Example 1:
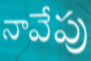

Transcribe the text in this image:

నావేపు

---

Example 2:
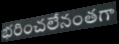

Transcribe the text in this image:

భరించలేనంతగా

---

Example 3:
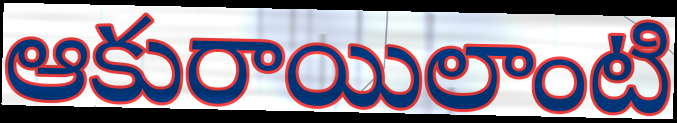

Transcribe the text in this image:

ఆకురాయిలాంటి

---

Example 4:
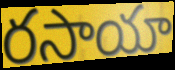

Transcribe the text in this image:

రసాయా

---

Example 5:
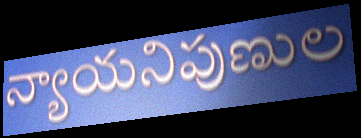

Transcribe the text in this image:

న్యాయనిపుణుల